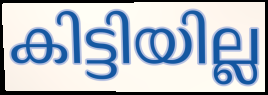
കിട്ടിയില്ല